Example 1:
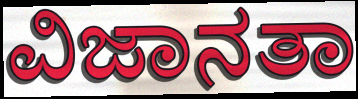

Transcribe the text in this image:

ವಿಜಾನತಾ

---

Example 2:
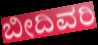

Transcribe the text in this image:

ಬೀದಿವರಿ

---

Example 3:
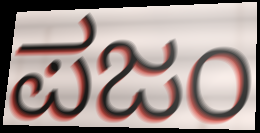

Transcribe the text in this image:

ಪಜಂ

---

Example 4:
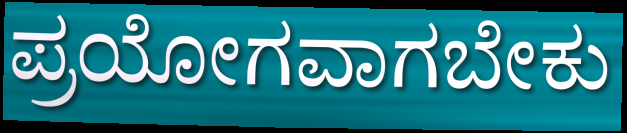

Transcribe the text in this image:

ಪ್ರಯೋಗವಾಗಬೇಕು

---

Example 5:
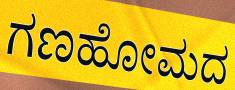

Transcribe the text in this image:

ಗಣಹೋಮದ